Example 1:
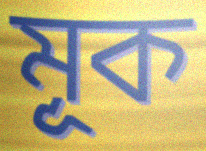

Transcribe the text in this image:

মূক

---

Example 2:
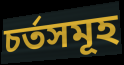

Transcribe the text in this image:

চৰ্তসমূহ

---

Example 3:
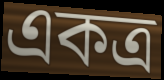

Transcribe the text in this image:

একত্ৰ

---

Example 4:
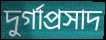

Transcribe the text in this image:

দুৰ্গাপ্ৰসাদ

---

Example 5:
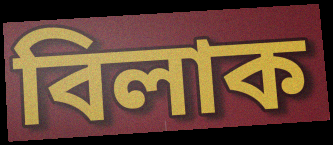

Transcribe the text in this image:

বিলাক